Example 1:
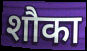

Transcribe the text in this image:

शौका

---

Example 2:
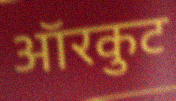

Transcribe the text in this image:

ऑरकुट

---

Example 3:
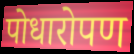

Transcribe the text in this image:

पोधारोपण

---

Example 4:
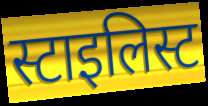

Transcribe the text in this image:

स्टाइलिस्ट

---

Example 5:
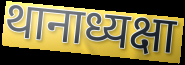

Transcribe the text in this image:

थानाध्यक्षा